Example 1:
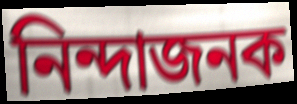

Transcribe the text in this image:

নিন্দাজনক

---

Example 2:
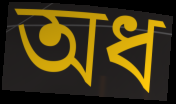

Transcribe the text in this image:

অধ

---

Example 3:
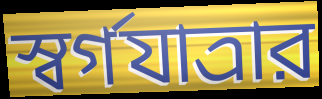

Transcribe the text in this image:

স্বর্গযাত্রার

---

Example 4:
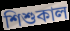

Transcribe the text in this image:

শিশুকাল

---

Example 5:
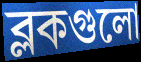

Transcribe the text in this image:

ব্লকগুলো